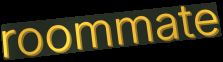
roommate